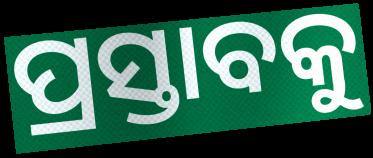
ପ୍ରସ୍ତାବକୁ